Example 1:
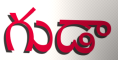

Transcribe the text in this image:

గుడా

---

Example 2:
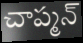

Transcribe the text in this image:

చాప్మన్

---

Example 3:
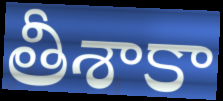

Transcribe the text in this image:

తీశాకా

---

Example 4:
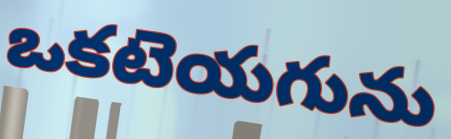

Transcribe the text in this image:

ఒకటెయగును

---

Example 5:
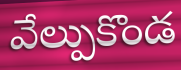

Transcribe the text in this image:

వేల్పుకొండ